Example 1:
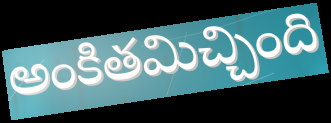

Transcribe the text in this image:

అంకితమిచ్చింది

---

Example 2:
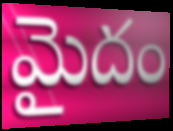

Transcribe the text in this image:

మైదం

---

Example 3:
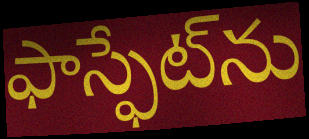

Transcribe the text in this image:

ఫాస్ఫేట్‌ను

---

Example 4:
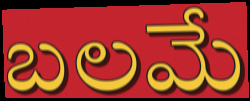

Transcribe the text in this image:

బలమే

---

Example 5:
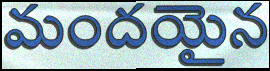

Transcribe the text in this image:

మందయైన